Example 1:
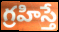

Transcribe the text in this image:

గ్రహిస్తే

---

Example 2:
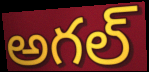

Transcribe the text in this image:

అగల్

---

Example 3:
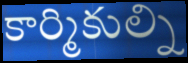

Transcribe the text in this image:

కార్మికుల్ని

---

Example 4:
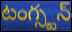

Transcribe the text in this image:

టంగ్స్టన్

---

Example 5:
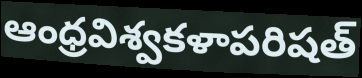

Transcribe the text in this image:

ఆంధ్రవిశ్వకళాపరిషత్